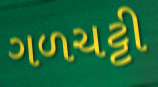
ગળચટ્ટી